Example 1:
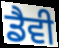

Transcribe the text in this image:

ਡੈਵੀ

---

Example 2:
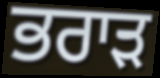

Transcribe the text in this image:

ਭਰਾੜ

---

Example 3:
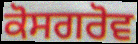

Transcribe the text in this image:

ਕੋਸਗਰੋਵ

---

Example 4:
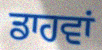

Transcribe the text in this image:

ਡਾਹਵਾਂ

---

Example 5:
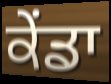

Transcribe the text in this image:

ਕੇਂਡਾ